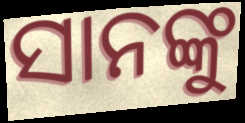
ସାନଙ୍କୁ